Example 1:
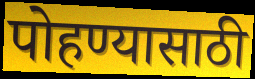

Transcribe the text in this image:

पोहण्यासाठी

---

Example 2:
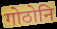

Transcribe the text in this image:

गोठोनि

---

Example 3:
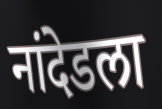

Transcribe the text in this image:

नांदेडला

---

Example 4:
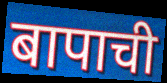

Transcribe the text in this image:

बापाची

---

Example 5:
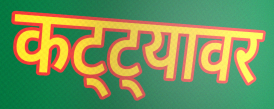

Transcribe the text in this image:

कट्ट्यावर